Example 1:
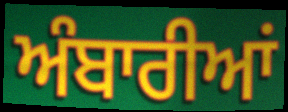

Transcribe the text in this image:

ਅੰਬਾਰੀਆਂ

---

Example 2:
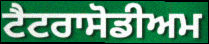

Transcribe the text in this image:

ਟੈਟਰਾਸੋਡੀਅਮ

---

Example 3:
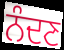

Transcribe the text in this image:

ਨੰਦਣ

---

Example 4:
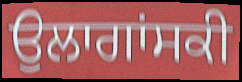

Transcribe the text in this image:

ਉਲਾਗਾਂਸਕੀ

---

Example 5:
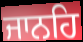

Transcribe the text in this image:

ਜਾਨਹਿ